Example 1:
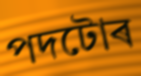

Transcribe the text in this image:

পদটোৰ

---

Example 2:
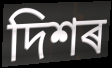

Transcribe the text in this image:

দিশৰ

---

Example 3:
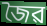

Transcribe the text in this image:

জৈৱ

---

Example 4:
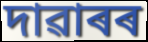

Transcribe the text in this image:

দাৱাৰৰ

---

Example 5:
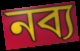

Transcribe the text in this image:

নব্য